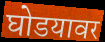
घोडयावर